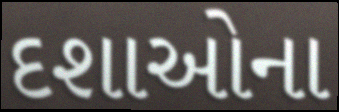
દશાઓના